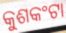
କୁଶକଂଟା